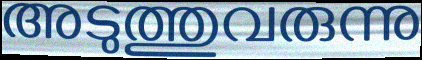
അടുത്തുവരുന്നു